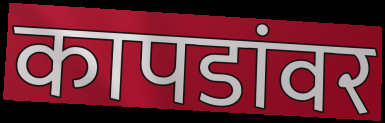
कापडांवर